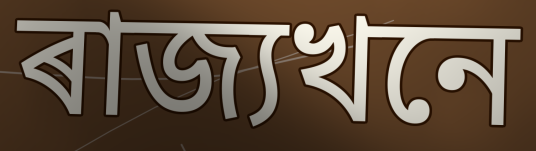
ৰাজ্যখনে